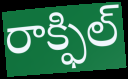
రాక్ఫిల్